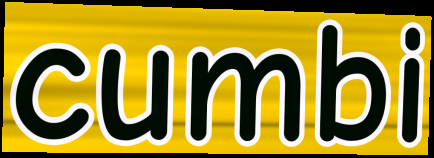
cumbi